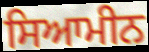
ਸਿਆਮੀਨ